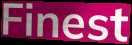
Finest